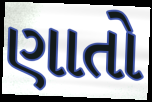
ણાતો